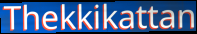
Thekkikattan